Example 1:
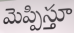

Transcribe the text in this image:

మెప్పిస్తూ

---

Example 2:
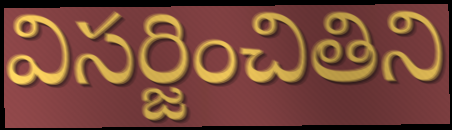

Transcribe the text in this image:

విసర్జించితిని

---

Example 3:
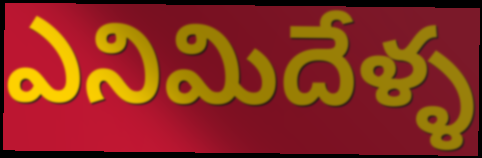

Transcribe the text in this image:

ఎనిమిదేళ్ళ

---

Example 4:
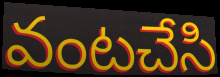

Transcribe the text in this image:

వంటచేసి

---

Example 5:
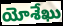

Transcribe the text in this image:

యోశేఖు